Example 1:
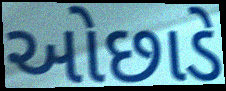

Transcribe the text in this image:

ઓછાડે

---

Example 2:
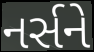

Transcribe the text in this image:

નર્સને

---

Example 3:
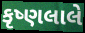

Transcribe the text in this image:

કૃષ્ણલાલે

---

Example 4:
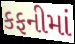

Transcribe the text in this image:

કફનીમાં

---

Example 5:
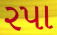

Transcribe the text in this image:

રપા